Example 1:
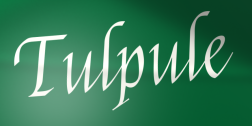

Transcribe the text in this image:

Tulpule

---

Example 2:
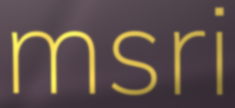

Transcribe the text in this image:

msri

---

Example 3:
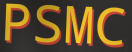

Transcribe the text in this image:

PSMC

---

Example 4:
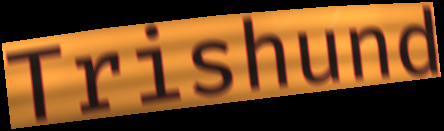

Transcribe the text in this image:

Trishund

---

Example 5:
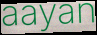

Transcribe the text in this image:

aayan